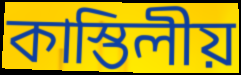
কাস্তিলীয়